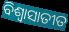
ବିଶ୍ୱାସାତୀତ